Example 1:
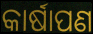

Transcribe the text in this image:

କାର୍ଷାପଣ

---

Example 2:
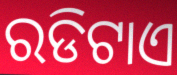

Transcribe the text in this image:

ରଡିଟାଏ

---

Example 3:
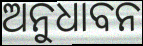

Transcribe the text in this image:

ଅନୁଧାବନ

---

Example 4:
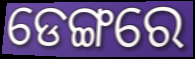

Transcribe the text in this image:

ଡେଙ୍ଗରେ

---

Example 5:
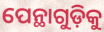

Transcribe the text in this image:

ପେନ୍ଥାଗୁଡ଼ିକୁ